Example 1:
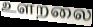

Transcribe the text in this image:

உளறலை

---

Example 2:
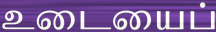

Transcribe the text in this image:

உடையைப்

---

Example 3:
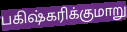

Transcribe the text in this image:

பகிஷ்கரிக்குமாறு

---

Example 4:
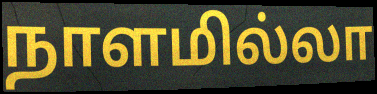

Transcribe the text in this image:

நாளமில்லா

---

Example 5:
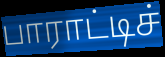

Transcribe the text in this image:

பாராட்டிச்